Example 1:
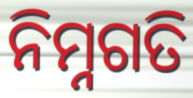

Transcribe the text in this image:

ନିମ୍ନଗତି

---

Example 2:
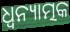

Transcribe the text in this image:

ଧ୍ୱନ୍ୟାତ୍ମକ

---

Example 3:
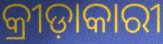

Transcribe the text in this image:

କ୍ରୀଡ଼ାକାରୀ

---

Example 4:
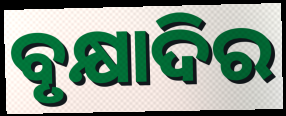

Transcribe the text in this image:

ବୃକ୍ଷାଦିର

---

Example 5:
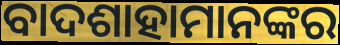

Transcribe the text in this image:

ବାଦଶାହାମାନଙ୍କର